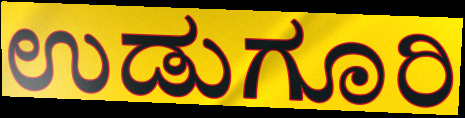
ಉಡುಗೂರಿ